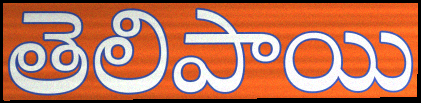
తెలిపాయి